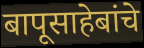
बापूसाहेबांचे